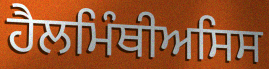
ਹੈਲਮਿੰਥੀਅਸਿਸ